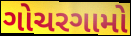
ગોચરગામો